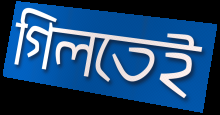
গিলতেই